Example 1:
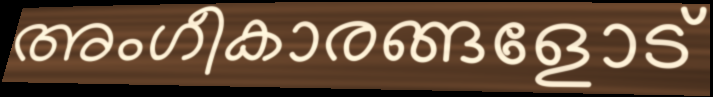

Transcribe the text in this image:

അംഗീകാരങ്ങളോട്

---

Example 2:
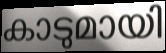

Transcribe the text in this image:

കാടുമായി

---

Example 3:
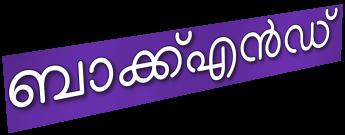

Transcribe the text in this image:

ബാക്ക്എൻഡ്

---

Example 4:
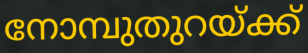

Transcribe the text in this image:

നോമ്പുതുറയ്ക്ക്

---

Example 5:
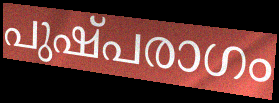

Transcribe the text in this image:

പുഷ്പരാഗം